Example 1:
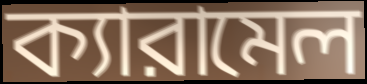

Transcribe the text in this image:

ক্যারামেল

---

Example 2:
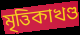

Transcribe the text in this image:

মৃত্তিকাখণ্ড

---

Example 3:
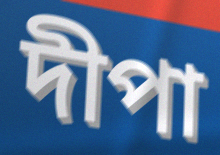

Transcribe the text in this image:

দীপা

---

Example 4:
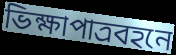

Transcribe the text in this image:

ভিক্ষাপাত্রবহনে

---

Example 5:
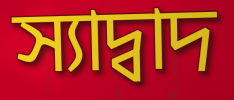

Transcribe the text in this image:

স্যাদ্বাদ